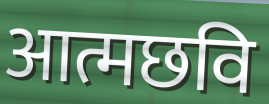
आत्मछवि